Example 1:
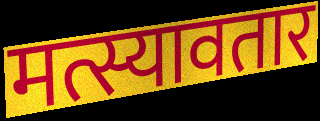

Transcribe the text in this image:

मत्स्यावतार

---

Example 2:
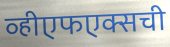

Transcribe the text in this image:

व्हीएफएक्सची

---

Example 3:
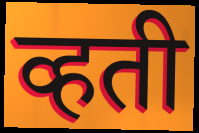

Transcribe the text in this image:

व्हती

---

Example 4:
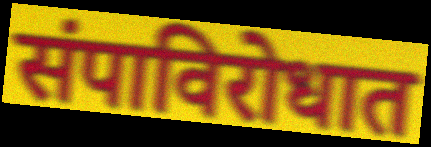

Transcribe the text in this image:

संपाविरोधात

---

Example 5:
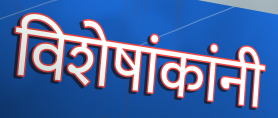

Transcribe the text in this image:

विशेषांकांनी